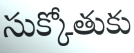
సుక్కోతుకు